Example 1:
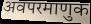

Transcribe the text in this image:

अवपरमाणुक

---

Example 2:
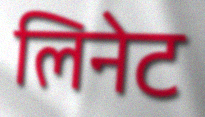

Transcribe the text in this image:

लिनेट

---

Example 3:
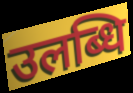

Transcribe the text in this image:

उलब्धि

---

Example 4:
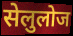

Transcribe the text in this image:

सेलुलोज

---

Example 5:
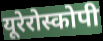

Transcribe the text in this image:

यूरेरोस्कोपी